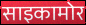
साइकामोर